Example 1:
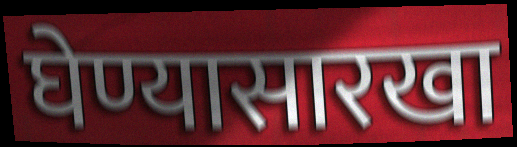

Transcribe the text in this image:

घेण्यासारखा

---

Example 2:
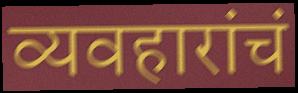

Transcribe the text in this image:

व्यवहारांचं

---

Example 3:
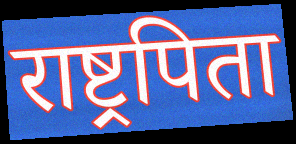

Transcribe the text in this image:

राष्ट्रपिता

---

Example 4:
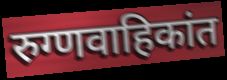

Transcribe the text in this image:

रुग्णवाहिकांत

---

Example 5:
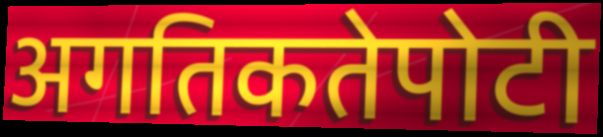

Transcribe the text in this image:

अगतिकतेपोटी